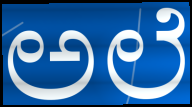
ಅಲೆ